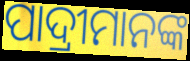
ପାଦ୍ରୀମାନଙ୍କ